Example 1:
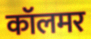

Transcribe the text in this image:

कॉलमर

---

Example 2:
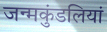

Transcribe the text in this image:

जन्मकुंडलियां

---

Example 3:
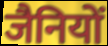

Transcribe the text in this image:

जैनियों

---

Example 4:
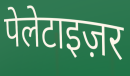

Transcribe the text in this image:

पेलेटाइज़र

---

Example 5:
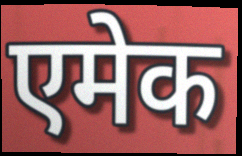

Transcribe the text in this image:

एमेक